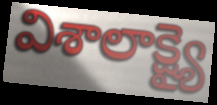
విశాలాక్ష్యై